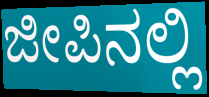
ಜೀಪಿನಲ್ಲಿ